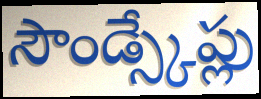
సౌండ్స్కేప్లు